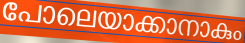
പോലെയാക്കാനാകും